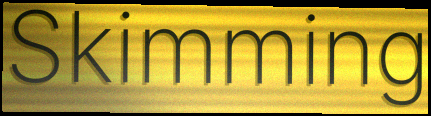
Skimming